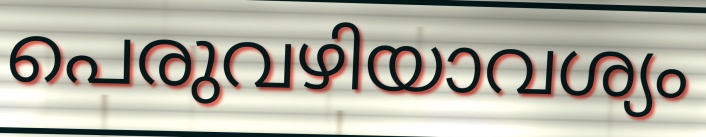
പെരുവഴിയാവശ്യം